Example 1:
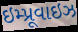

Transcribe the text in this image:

ઇમ્પ્રૂવાઇઝ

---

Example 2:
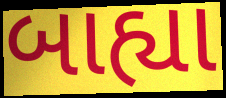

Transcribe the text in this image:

બાહ્યા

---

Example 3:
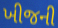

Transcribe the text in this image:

ખીજની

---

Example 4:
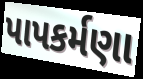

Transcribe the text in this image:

પાપકર્મણા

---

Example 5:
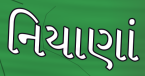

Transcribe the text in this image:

નિયાણાં